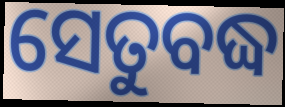
ସେତୁବଦ୍ଧ